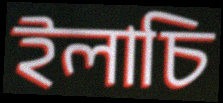
ইলাচি